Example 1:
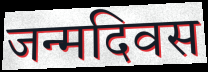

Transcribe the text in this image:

जन्मदिवस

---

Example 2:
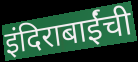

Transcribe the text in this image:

इंदिराबाईंची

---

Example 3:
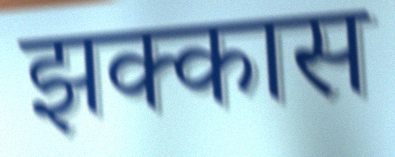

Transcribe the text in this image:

झक्कास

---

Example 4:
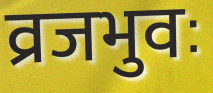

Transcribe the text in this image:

व्रजभुवः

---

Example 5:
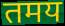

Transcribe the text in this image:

तमय